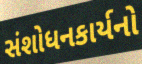
સંશોધનકાર્યનો